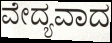
ವೇದ್ಯವಾದ